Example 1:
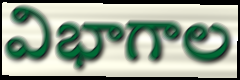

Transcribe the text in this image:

విభాగాల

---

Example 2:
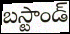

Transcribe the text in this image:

బస్టాండ్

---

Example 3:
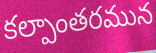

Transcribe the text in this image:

కల్పాంతరమున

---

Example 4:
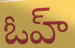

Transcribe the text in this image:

ఓహ్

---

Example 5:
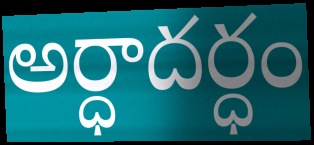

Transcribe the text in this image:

అర్ధాదర్ధం